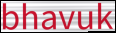
bhavuk